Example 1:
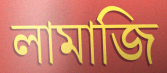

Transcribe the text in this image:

লামাজি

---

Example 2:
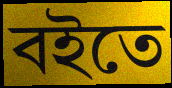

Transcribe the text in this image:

বইতে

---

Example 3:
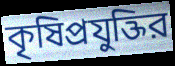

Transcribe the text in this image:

কৃষিপ্রযুক্তির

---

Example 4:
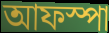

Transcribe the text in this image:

আফস্পা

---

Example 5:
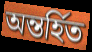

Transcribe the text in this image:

অন্তর্হিত